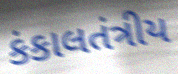
કંકાલતંત્રીય